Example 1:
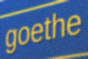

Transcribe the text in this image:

goethe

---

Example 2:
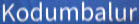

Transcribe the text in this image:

Kodumbalur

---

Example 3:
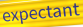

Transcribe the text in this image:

expectant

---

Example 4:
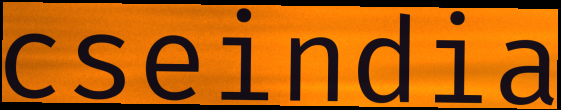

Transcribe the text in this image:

cseindia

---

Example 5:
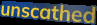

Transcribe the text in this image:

unscathed